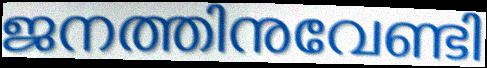
ജനത്തിനുവേണ്ടി